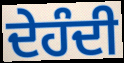
ਦੇਹੰਦੀ